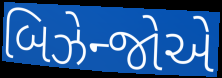
બિઝેન્જોએ